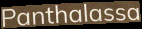
Panthalassa